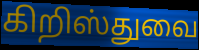
கிறிஸ்துவை